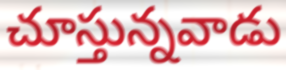
చూస్తున్నవాడు